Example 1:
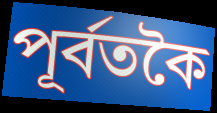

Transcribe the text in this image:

পূৰ্বতকৈ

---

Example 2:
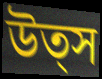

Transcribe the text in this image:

উত্স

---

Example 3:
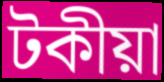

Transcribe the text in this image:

টকীয়া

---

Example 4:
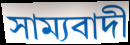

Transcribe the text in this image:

সাম্যবাদী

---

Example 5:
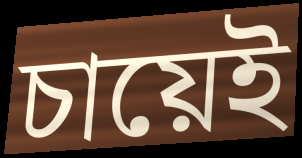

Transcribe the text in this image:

চায়েই